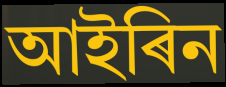
আইৰিন